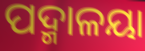
ପଦ୍ମାଳୟା